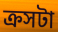
ক্রসটা